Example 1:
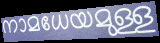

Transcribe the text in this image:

നാമധേയമുള്ള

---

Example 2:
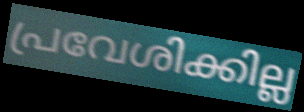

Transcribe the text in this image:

പ്രവേശിക്കില്ല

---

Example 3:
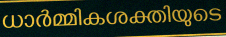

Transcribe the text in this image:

ധാർമ്മികശക്തിയുടെ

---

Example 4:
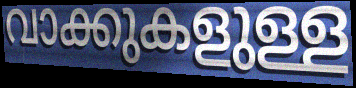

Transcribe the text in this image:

വാക്കുകളുള്ള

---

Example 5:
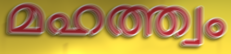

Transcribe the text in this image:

മഹത്ത്വം